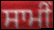
ਸਾਮੀਂ